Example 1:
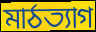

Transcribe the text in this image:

মাঠত্যাগ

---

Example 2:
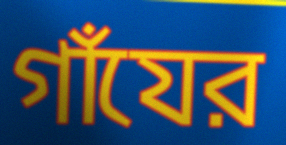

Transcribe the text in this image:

গাঁযের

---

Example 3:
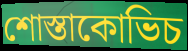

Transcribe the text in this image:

শোস্তাকোভিচ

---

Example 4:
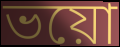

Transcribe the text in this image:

ভয়ো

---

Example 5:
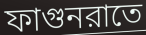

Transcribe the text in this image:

ফাগুনরাতে